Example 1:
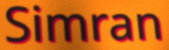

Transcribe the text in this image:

Simran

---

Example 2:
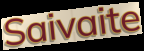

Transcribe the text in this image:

Saivaite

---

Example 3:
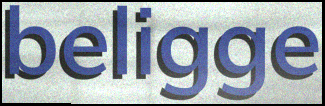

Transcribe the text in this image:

beligge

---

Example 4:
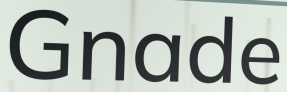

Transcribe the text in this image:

Gnade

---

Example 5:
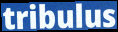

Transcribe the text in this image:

tribulus